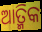
ଆତ୍ମିକ